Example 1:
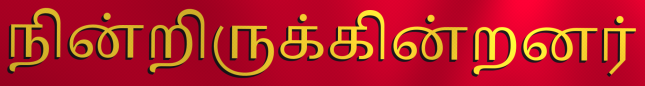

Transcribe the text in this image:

நின்றிருக்கின்றனர்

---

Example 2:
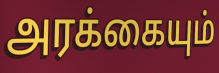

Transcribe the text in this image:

அரக்கையும்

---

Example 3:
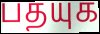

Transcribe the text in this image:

பதயுக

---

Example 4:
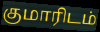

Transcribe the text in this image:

குமாரிடம்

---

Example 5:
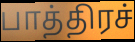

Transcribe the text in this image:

பாத்திரச்